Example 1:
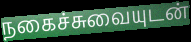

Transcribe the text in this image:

நகைச்சுவையுடன்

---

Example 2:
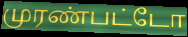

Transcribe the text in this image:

முரண்பட்டோ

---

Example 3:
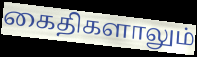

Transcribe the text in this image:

கைதிகளாலும்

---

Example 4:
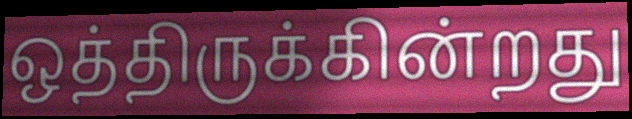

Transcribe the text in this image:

ஒத்திருக்கின்றது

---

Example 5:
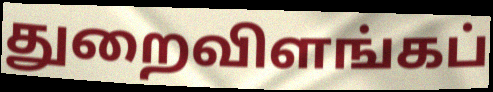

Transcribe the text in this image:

துறைவிளங்கப்